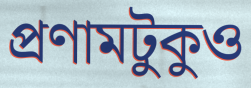
প্রণামটুকুও